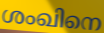
ശംഖിനെ